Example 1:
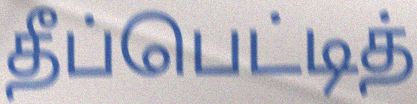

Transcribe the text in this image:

தீப்பெட்டித்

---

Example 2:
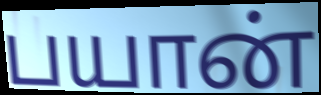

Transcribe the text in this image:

பயான்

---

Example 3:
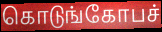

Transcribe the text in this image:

கொடுங்கோபச்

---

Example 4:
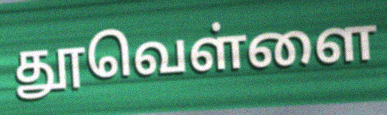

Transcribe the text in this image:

தூவெள்ளை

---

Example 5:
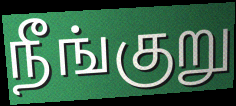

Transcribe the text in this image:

நீங்குறு